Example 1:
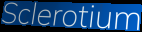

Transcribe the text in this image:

Sclerotium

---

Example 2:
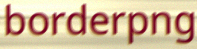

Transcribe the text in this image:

borderpng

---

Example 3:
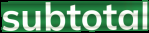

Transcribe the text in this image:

subtotal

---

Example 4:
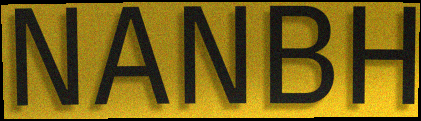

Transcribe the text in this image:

NANBH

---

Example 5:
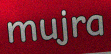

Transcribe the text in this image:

mujra